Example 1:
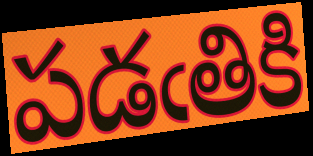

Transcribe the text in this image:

పడఁతికి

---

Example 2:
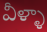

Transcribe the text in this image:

వీళ్ళా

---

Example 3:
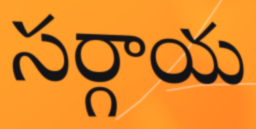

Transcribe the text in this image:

సర్గాయ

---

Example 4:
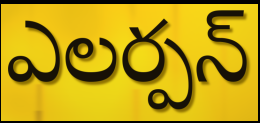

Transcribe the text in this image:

ఎలర్పన్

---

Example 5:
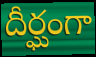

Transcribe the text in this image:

దీర్ఘంగా